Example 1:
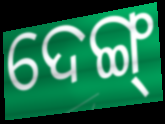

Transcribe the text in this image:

ଦେଙ୍ଗ୍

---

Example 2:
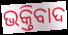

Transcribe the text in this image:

ଭକ୍ତିବାଦ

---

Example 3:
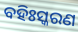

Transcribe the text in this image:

ବହିଃସ୍କରଣ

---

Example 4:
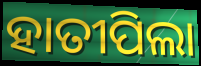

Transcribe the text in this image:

ହାତୀପିଲା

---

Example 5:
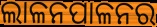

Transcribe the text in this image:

ଲାଳନପାଳନର